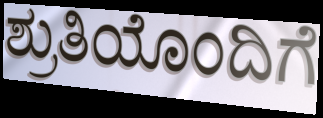
ಶ್ರುತಿಯೊಂದಿಗೆ